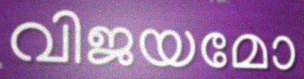
വിജയമോ